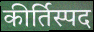
कीर्तिस्पद